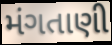
મંગતાણી